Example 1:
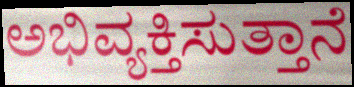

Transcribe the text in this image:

ಅಭಿವ್ಯಕ್ತಿಸುತ್ತಾನೆ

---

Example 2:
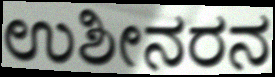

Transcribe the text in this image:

ಉಶೀನರನ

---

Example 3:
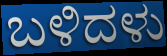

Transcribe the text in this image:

ಬಳಿದಳು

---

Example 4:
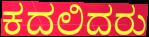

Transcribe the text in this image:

ಕದಲಿದರು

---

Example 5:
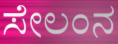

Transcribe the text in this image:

ಸೇಲಂನ